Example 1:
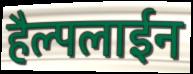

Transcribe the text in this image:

हैल्पलाईन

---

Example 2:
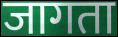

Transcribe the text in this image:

जागता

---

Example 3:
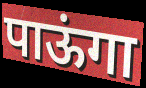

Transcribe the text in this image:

पाऊंगा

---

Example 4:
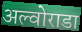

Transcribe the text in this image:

अल्वोराडा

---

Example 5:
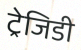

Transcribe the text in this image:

ट्रेजिडी